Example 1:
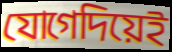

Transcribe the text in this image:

যোগেদিয়েই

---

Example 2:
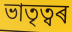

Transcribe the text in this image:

ভাতৃত্বৰ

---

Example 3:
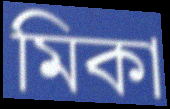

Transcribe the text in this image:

মিকা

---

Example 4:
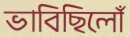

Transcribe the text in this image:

ভাবিছিলোঁ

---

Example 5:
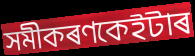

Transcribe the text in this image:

সমীকৰণকেইটাৰ